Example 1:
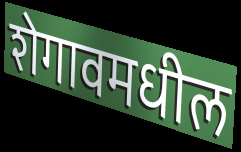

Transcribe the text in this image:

शेगावमधील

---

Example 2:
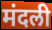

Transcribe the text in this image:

मंदली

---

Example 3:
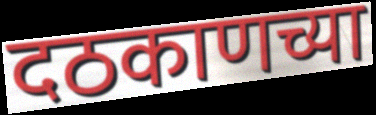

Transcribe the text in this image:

दठकाणच्या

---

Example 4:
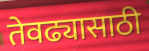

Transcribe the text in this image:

तेवढ्यासाठी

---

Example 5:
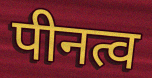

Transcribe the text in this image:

पीनत्व